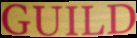
GUILD